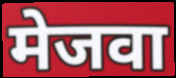
मेजवा